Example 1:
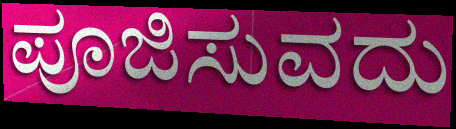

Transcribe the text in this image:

ಪೂಜಿಸುವದು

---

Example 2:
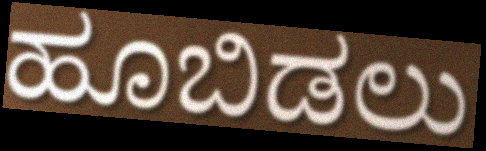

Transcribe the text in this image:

ಹೂಬಿಡಲು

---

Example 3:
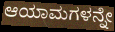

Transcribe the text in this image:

ಆಯಾಮಗಳನ್ನೇ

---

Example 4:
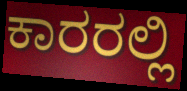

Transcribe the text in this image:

ಕಾರರಲ್ಲಿ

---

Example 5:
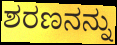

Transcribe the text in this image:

ಶರಣನನ್ನು